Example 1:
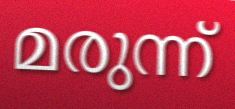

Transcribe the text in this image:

മരുന്ന്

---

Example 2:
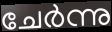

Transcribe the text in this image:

ചേർന്നു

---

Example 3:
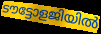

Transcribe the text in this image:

ടൗട്ടോളജിയിൽ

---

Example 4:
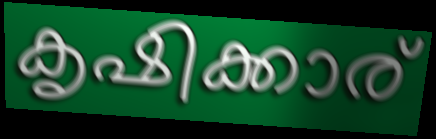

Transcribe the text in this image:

കൃഷിക്കാര്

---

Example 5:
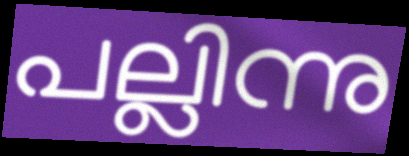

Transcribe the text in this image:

പല്ലിന്നു